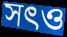
সৎও